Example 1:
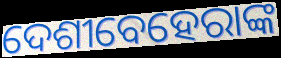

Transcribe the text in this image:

ଦେଶୀବେହେରାଙ୍କ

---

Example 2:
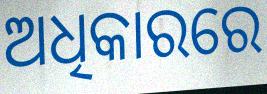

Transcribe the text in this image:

ଅଧିକାରରେ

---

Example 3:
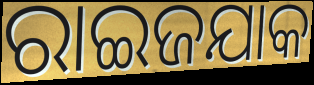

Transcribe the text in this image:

ରାଇଜଯାକ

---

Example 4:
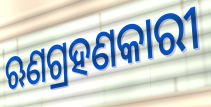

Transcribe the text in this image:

ଋଣଗ୍ରହଣକାରୀ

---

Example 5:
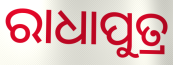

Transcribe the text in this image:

ରାଧାପୁତ୍ର